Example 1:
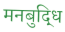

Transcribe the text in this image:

मनबुद्धि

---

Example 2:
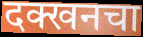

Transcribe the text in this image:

दक्खनचा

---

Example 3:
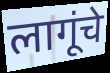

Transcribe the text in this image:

लागूंचे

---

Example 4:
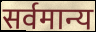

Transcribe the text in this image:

सर्वमान्य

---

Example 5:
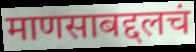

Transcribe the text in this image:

माणसाबद्दलचं